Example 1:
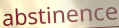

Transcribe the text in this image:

abstinence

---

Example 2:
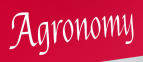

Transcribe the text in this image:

Agronomy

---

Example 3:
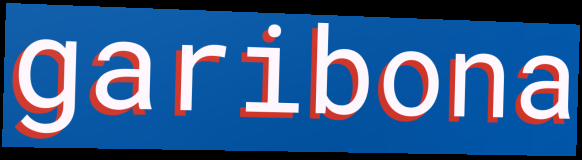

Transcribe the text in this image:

garibona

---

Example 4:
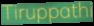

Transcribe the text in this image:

Tiruppathi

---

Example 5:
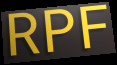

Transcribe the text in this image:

RPF